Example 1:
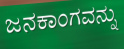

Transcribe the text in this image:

ಜನಕಾಂಗವನ್ನು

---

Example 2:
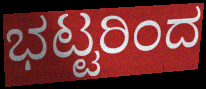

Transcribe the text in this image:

ಭಟ್ಟರಿಂದ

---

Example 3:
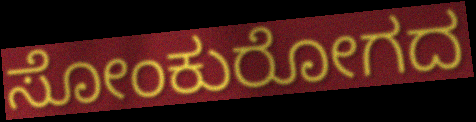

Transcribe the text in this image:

ಸೋಂಕುರೋಗದ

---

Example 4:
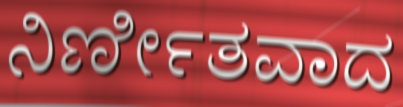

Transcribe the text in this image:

ನಿರ್ಣೀತವಾದ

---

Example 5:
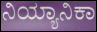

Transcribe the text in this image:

ನಿಯ್ಯಾನಿಕಾ